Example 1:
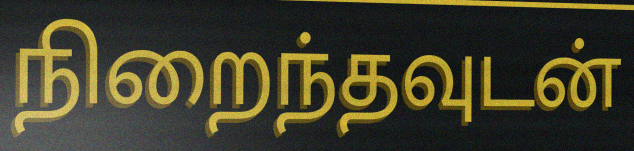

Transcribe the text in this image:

நிறைந்தவுடன்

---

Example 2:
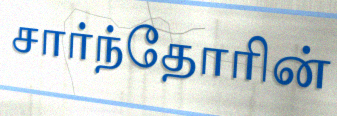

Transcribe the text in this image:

சார்ந்தோரின்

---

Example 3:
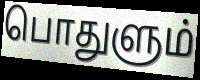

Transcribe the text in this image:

பொதுளும்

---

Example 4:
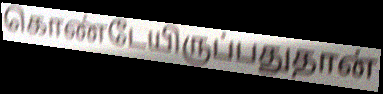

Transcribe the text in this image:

கொண்டேயிருப்பதுதான்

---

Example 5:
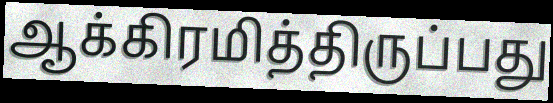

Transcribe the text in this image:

ஆக்கிரமித்திருப்பது